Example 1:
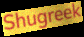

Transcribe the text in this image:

Shugreek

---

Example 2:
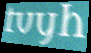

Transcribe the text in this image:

tuyh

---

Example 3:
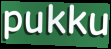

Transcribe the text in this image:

pukku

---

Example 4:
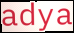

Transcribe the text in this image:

adya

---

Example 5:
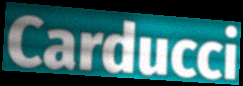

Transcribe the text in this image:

Carducci